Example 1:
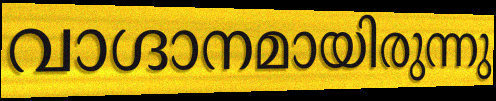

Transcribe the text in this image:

വാഗ്ദാനമായിരുന്നു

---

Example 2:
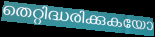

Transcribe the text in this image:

തെറ്റിദ്ധരിക്കുകയോ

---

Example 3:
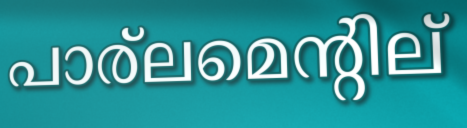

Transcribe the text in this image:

പാര്ലമെന്റില്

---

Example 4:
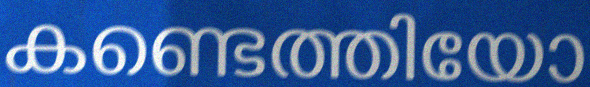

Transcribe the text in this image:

കണ്ടെത്തിയോ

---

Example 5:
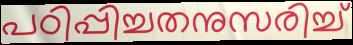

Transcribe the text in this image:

പഠിപ്പിച്ചതനുസരിച്ച്